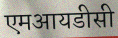
एमआयडीसी